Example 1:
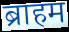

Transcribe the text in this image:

ब्राहम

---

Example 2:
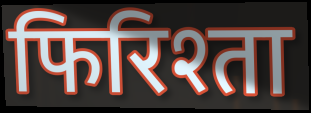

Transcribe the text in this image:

फिरिश्ता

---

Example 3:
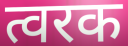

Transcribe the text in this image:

त्वरक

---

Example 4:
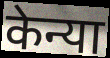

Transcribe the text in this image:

केन्या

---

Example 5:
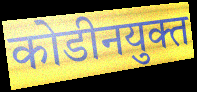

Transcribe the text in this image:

कोडीनयुक्त